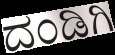
ದಂಡಿಗಿ